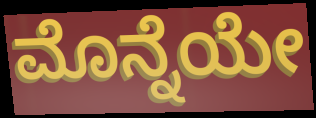
ಮೊನ್ನೆಯೇ